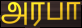
அரபா